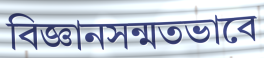
বিজ্ঞানসন্মতভাবে